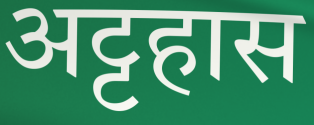
अट्टहास